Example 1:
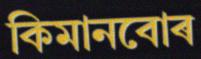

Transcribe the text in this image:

কিমানবোৰ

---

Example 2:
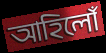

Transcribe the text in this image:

আহিলোঁ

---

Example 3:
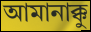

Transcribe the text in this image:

আমানাক্কু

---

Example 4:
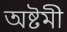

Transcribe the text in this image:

অষ্টমী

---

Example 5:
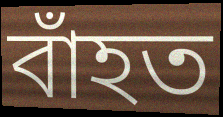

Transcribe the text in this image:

বাঁহত